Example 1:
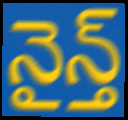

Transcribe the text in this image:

నైన్త్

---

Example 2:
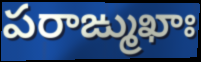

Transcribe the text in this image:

పరాఙ్ముఖాః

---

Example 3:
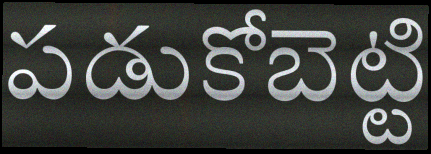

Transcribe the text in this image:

పడుకోబెట్టి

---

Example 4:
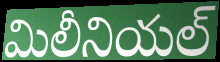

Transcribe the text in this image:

మిలీనియల్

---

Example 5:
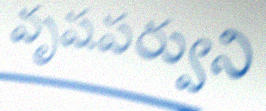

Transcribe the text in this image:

వృషపర్వుని